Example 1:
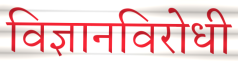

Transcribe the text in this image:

विज्ञानविरोधी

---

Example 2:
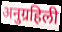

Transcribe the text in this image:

अनुग्रहिली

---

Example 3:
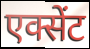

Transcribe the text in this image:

एक्सेंट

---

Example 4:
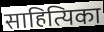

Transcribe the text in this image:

साहित्यिका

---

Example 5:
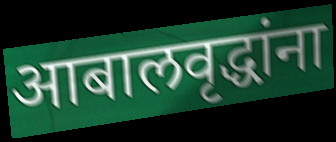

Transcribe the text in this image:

आबालवृद्धांना